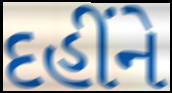
દહીંને